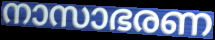
നാസാഭരണ